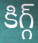
కిగ్గ్